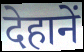
देहानें